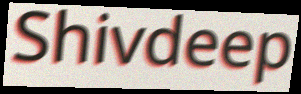
Shivdeep